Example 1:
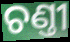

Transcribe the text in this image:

ଚଣ୍ତୀ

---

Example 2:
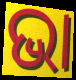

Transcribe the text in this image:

ଭା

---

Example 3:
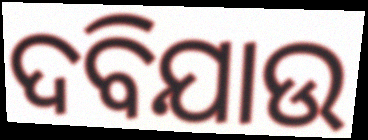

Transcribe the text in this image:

ଦବିଯାଉ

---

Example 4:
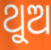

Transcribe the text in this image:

ଥୁଅ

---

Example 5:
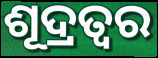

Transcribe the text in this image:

ଶୂଦ୍ରତ୍ଵର